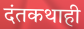
दंतकथाही